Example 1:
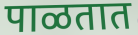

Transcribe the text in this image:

पाळतात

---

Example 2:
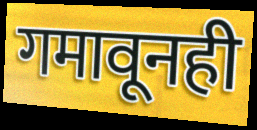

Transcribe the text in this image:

गमावूनही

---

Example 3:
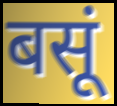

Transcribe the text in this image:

बसूं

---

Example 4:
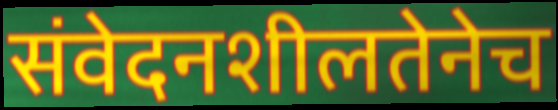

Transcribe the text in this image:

संवेदनशीलतेनेच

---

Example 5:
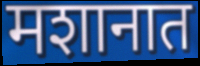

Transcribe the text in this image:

मशानात